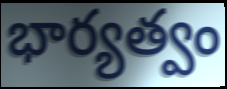
భార్యత్వం